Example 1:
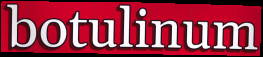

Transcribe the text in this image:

botulinum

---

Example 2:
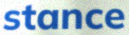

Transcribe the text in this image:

stance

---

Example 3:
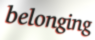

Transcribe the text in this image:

belonging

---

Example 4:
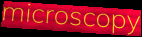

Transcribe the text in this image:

microscopy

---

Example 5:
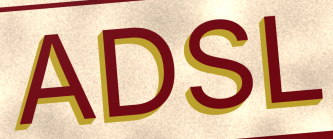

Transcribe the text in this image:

ADSL